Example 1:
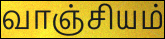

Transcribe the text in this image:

வாஞ்சியம்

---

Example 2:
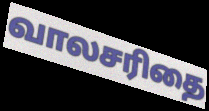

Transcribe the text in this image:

வாலசரிதை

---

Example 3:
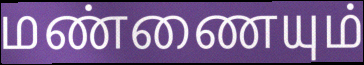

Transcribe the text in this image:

மண்ணையும்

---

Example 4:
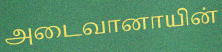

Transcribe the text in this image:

அடைவானாயின்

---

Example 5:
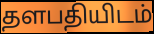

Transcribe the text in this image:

தளபதியிடம்